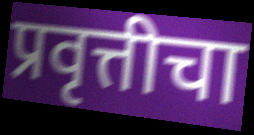
प्रवृत्तीचा